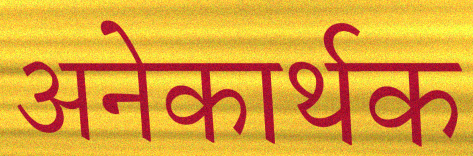
अनेकार्थक